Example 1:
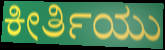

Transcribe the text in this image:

ಕೀರ್ತಿಯು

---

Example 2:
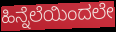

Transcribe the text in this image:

ಹಿನ್ನೆಲೆಯಿಂದಲೇ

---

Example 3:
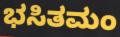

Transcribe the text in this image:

ಭಸಿತಮಂ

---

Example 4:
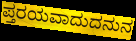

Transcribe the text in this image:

ಪ್ತರಯವಾದುದನುನ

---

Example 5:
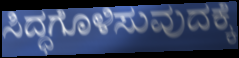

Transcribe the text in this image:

ಸಿದ್ಧಗೊಳಿಸುವುದಕ್ಕೆ